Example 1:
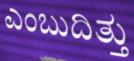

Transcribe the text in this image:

ಎಂಬುದಿತ್ತು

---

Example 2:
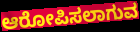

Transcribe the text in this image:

ಆರೋಪಿಸಲಾಗುವ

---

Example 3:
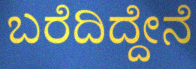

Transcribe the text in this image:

ಬರೆದಿದ್ದೇನೆ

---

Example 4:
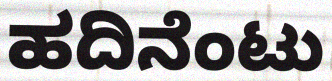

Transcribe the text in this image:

ಹದಿನೆಂಟು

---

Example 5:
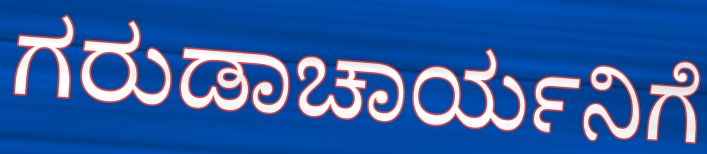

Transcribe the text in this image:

ಗರುಡಾಚಾರ್ಯನಿಗೆ